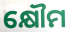
କ୍ଷୌମ